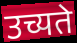
उच्यते